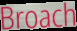
Broach